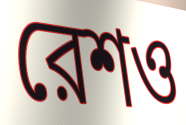
রেশও